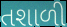
તશાળી